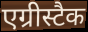
एग्रीस्टैक